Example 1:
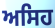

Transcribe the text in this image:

ਅਸਿਹ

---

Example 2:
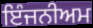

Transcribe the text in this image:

ਇੰਜਨੀਅਮ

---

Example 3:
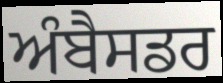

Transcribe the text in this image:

ਅੰਬੈਸਡਰ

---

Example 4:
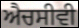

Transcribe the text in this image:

ਐਚਸੀਵੀ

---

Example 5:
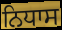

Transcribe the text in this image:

ਨਿਧਾਸ